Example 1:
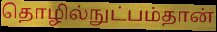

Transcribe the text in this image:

தொழில்நுட்பம்தான்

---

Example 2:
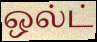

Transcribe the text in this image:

ஒல்ட்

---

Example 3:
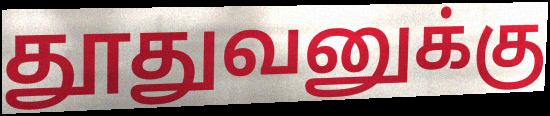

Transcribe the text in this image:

தூதுவனுக்கு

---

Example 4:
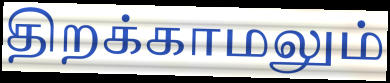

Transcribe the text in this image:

திறக்காமலும்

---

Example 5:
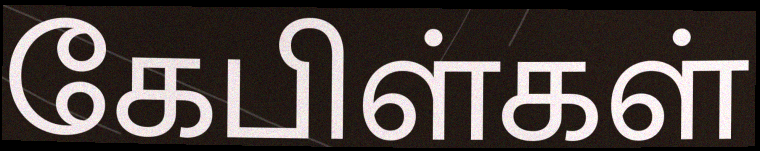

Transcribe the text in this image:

கேபிள்கள்